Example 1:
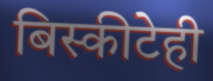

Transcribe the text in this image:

बिस्कीटेही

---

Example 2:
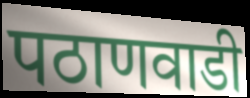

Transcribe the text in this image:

पठाणवाडी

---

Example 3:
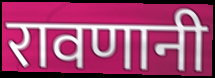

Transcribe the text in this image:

रावणानी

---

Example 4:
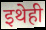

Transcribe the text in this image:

इथेही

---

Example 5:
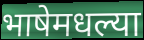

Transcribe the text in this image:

भाषेमधल्या